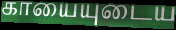
காயையுடைய